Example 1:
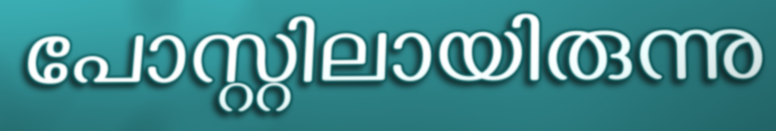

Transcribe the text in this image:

പോസ്റ്റിലായിരുന്നു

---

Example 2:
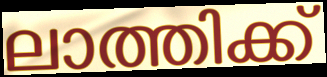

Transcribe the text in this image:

ലാത്തിക്ക്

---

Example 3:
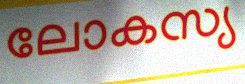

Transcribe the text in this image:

ലോകസ്യ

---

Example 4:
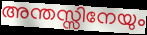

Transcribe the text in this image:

അന്തസ്സിനേയും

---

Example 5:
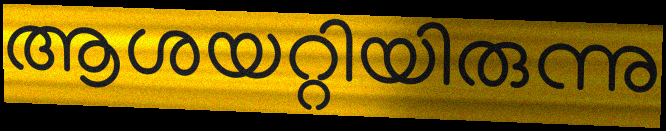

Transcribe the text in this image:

ആശയറ്റിയിരുന്നു